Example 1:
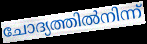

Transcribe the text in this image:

ചോദ്യത്തിൽനിന്ന്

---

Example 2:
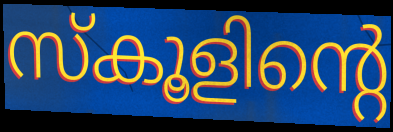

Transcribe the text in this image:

സ്കൂളിന്റെ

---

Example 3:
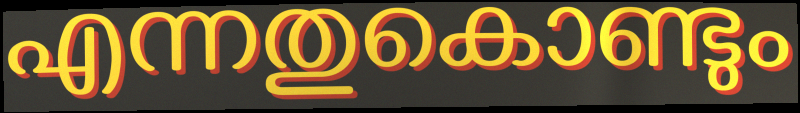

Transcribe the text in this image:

എന്നതുകൊണ്ടും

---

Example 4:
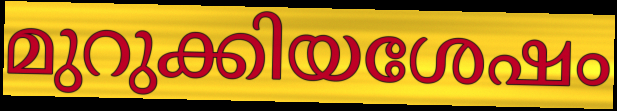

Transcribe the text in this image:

മുറുക്കിയശേഷം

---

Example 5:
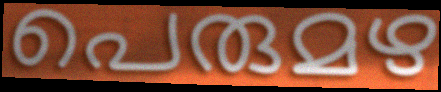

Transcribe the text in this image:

പെരുമഴ